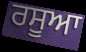
ਰਸੂਆ